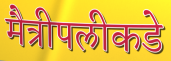
मैत्रीपलीकडे